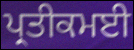
ਪ੍ਰਤੀਕਮਈ